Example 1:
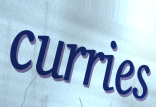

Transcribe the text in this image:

curries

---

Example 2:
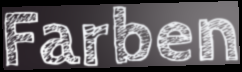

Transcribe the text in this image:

Farben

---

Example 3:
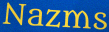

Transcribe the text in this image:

Nazms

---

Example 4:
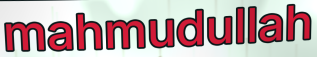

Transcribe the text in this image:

mahmudullah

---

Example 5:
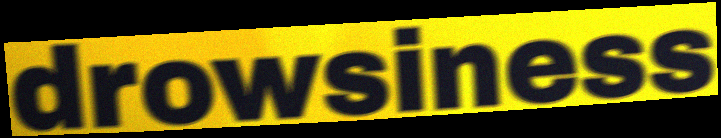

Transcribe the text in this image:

drowsiness